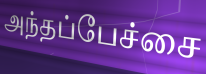
அந்தப்பேச்சை